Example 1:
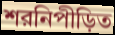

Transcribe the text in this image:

শরনিপীড়িত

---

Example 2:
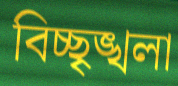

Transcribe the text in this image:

বিচ্ছৃঙ্খলা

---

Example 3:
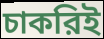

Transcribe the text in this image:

চাকরিই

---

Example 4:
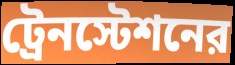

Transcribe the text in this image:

ট্রেনস্টেশনের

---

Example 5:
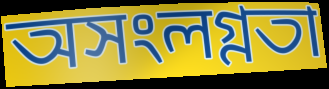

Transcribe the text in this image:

অসংলগ্নতা